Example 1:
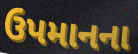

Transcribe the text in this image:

ઉપમાનના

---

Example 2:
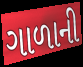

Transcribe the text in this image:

ગાળાની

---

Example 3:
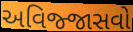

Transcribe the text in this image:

અવિજ્જાસવો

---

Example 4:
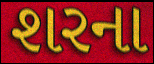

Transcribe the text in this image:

શરના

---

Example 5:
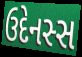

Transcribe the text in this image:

ઉદેનસ્સ